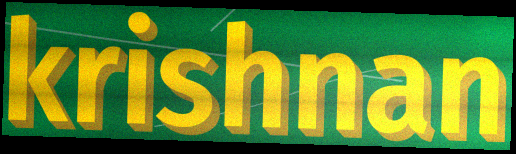
krishnan